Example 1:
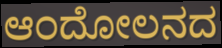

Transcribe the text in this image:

ಆಂದೋಲನದ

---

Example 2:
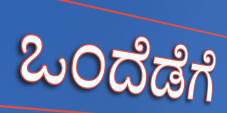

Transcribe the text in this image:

ಒಂದೆಡೆಗೆ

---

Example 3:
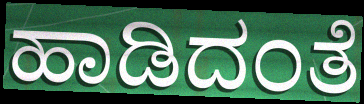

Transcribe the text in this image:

ಹಾಡಿದಂತೆ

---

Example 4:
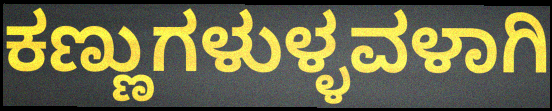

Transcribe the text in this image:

ಕಣ್ಣುಗಳುಳ್ಳವಳಾಗಿ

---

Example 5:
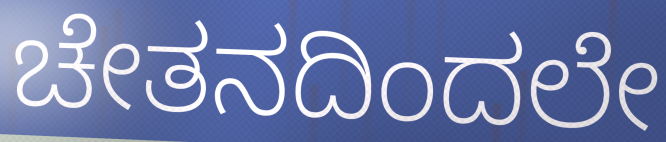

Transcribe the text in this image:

ಚೇತನದಿಂದಲೇ